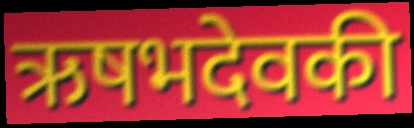
ऋषभदेवकी